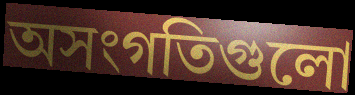
অসংগতিগুলো